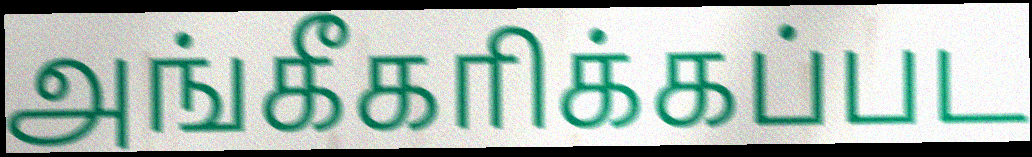
அங்கீகரிக்கப்பட